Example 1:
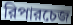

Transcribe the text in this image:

রিপারচেজ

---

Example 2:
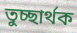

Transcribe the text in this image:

তুচ্ছার্থক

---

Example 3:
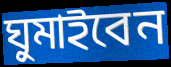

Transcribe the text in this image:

ঘুমাইবেন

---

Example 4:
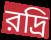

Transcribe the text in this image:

রদ্রি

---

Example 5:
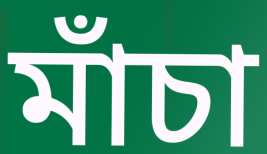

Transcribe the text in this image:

মাঁচা